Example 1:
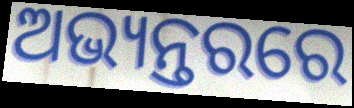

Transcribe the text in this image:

ଅଭ୍ୟନ୍ତରରେ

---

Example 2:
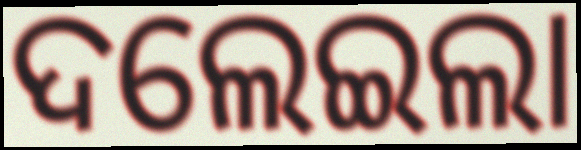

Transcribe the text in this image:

ଦଲେଇଲା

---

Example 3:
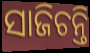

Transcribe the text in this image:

ସାଜିଚନ୍ତି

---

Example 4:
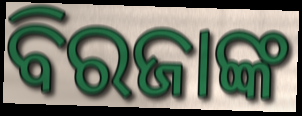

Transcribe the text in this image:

ବିରଜାଙ୍କ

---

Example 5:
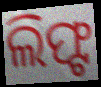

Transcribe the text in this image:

ଲିଫ୍ଟ